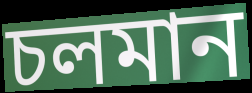
চলমান